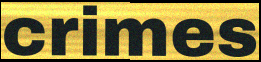
crimes